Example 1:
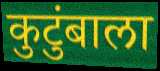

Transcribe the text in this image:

कुटुंबाला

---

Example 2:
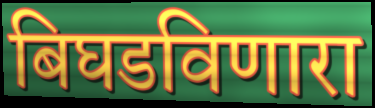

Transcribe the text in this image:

बिघडविणारा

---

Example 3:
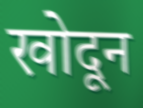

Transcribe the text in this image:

खोदून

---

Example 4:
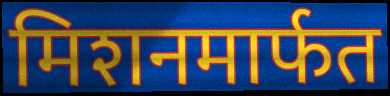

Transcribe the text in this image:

मिशनमार्फत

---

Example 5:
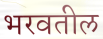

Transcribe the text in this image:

भरवतील